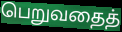
பெறுவதைத்